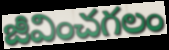
జీవించగలం